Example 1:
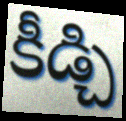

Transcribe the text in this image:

కీడ్చి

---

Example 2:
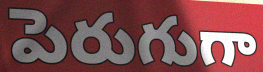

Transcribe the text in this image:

పెరుగుగా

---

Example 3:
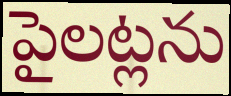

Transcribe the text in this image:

పైలట్లను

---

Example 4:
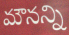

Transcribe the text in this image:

మౌనన్ని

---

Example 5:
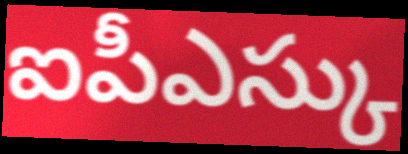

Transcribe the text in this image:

ఐపీఎస్కు